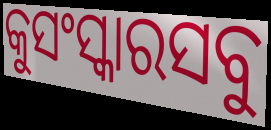
କୁସଂସ୍କାରସବୁ